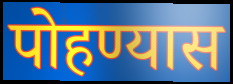
पोहण्यास